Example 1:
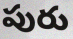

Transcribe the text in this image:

పురు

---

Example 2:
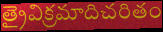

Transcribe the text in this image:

త్రైవిక్రమాదిచరితం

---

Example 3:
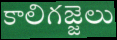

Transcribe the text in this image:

కాలిగజ్జెలు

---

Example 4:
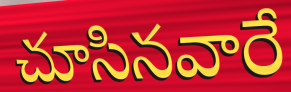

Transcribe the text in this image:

చూసినవారే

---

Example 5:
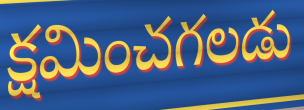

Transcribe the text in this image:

క్షమించగలడు